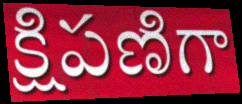
క్షిపణిగా